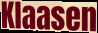
Klaasen